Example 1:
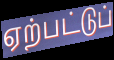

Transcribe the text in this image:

ஏற்பட்டுப்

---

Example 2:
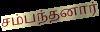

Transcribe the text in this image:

சம்பந்தனார்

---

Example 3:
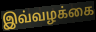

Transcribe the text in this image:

இவ்வழக்கை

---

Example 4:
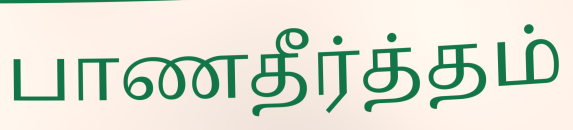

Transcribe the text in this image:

பாணதீர்த்தம்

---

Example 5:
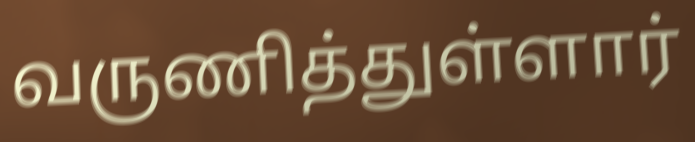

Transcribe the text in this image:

வருணித்துள்ளார்